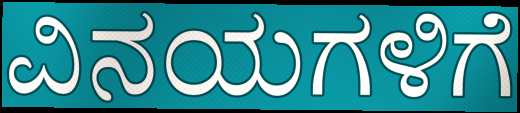
ವಿನಯಗಳಿಗೆ